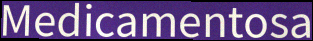
Medicamentosa